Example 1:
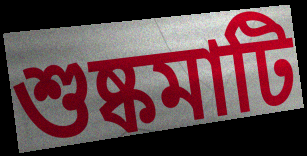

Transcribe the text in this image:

শুষ্কমাটি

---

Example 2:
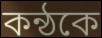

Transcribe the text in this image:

কন্ঠকে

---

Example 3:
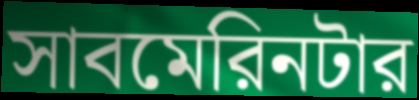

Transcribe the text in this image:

সাবমেরিনটার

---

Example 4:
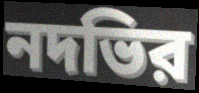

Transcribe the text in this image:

নদভির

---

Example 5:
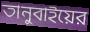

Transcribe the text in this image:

তানুবাইয়ের